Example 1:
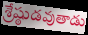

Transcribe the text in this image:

శ్రేష్ఠుడవుతాడు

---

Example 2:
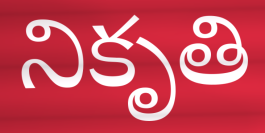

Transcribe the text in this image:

నికృతి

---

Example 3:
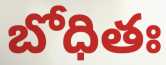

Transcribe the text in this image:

బోధితః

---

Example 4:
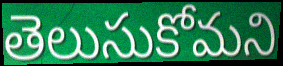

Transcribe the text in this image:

తెలుసుకోమని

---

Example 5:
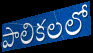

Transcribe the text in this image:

పాలికలలో